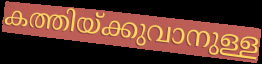
കത്തിയ്ക്കുവാനുള്ള